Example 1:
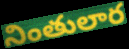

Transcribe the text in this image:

నింతులార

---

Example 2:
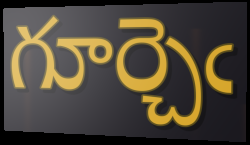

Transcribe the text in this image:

గూర్చెఁ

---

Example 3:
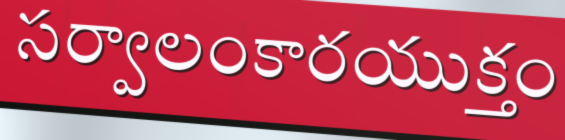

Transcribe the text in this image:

సర్వాలంకారయుక్తం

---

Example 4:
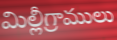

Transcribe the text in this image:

మిల్లీగ్రాములు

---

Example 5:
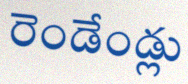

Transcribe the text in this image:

రెండేండ్లు